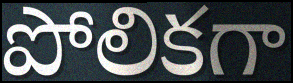
పోలికగా